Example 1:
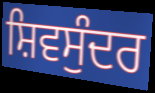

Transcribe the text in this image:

ਸ਼ਿਵਸੁੰਦਰ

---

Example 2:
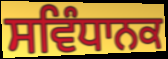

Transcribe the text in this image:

ਸਵਿੰਧਾਨਕ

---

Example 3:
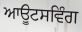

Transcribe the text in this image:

ਆਊਟਸਵਿੰਗ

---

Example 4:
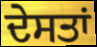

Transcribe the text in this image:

ਦੇਸਤਾਂ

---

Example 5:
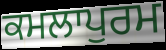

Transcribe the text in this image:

ਕਮਲਾਪੁਰਮ